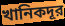
খানিকদূর